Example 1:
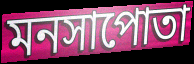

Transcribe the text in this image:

মনসাপোতা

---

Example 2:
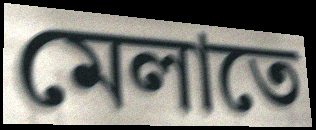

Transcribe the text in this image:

মেলাতে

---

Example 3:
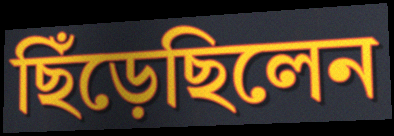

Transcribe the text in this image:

ছিঁড়েছিলেন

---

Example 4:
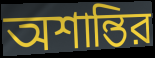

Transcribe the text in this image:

অশান্তির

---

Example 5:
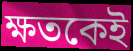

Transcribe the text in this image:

ক্ষতকেই